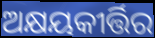
ଅକ୍ଷୟକୀର୍ତ୍ତିର